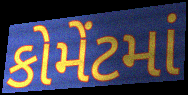
કોમેંટમાં